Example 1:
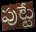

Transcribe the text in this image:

పుట్టే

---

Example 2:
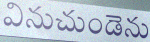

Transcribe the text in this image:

వినుచుండెను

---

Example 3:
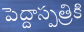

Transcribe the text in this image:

పెద్దాస్పత్రికి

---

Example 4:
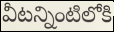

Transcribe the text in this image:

వీటన్నింటిలోకి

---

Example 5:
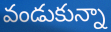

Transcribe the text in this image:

వండుకున్నా